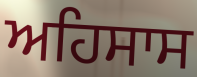
ਅਹਿਸਾਸ